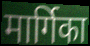
मार्गिका